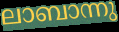
ലാബാന്നു